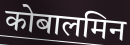
कोबालमिन